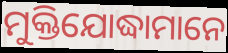
ମୁକ୍ତିଯୋଦ୍ଧାମାନେ